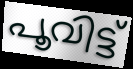
പൂവിട്ട്